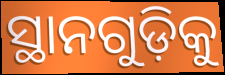
ସ୍ଥାନଗୁଡ଼ିକୁ